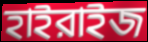
হাইরাইজ